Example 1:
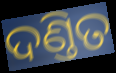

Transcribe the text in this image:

ଦଣ୍ତିତ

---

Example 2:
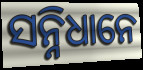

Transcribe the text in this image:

ସନ୍ନିଧାନେ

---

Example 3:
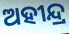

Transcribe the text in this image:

ଅହୀନ୍ଦ୍ର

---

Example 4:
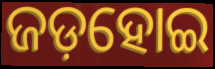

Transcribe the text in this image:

ଜଡ଼ହୋଇ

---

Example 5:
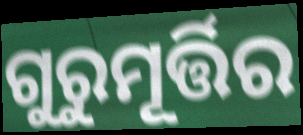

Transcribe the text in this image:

ଗୁରୁମୂର୍ତ୍ତିର